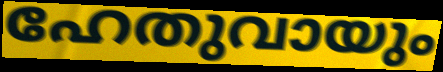
ഹേതുവായും